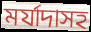
মর্যাদাসহ